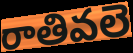
రాతివలె